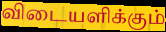
விடையளிக்கும்